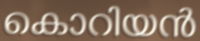
കൊറിയൻ